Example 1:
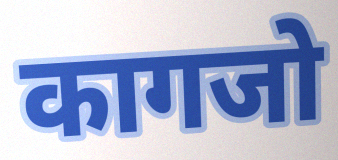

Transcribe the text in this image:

कागजो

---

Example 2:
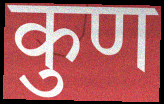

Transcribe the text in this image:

कुण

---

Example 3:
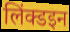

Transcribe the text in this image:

लिंक्डइन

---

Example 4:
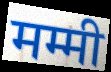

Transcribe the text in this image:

मम्मी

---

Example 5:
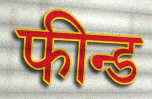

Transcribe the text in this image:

फीन्ड